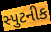
સ્પુટનીક